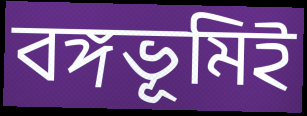
বঙ্গভূমিই